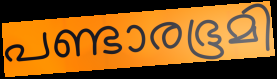
പണ്ടാരഭൂമി